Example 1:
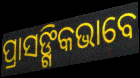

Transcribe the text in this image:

ପ୍ରାସଙ୍ଗିକଭାବେ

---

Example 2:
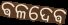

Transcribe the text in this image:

ଵଳଦେଵ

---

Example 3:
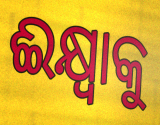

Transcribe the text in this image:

ଈକ୍ଷ୍ୱାକୁ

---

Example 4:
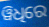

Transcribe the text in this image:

ୱିଧିରେ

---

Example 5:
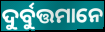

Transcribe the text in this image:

ଦୁର୍ବୁତ୍ତମାନେ